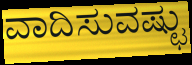
ವಾದಿಸುವಷ್ಟು